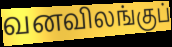
வனவிலங்குப்